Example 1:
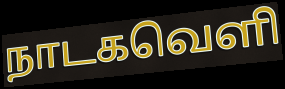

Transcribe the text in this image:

நாடகவெளி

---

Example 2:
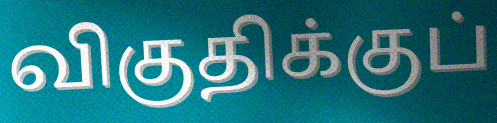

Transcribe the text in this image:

விகுதிக்குப்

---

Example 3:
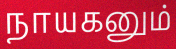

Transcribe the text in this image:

நாயகனும்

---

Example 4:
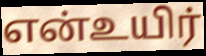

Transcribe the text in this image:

என்உயிர்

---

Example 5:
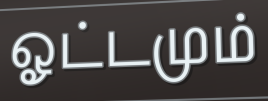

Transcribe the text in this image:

ஓட்டமும்